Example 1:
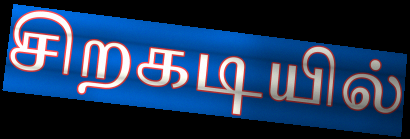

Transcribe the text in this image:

சிறகடியில்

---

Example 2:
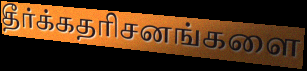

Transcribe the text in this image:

தீர்க்கதரிசனங்களை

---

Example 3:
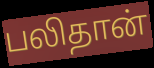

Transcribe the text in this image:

பலிதான்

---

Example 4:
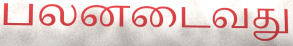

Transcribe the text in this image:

பலனடைவது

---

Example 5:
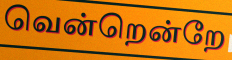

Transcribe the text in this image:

வென்றென்றே